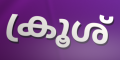
ക്രൂശ്